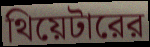
থিয়েটারের